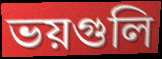
ভয়গুলি